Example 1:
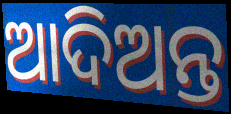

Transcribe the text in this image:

ଆଦିଅନ୍ତ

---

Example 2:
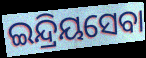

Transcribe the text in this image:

ଇନ୍ଦ୍ରିୟସେବା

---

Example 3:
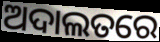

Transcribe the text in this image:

ଅଦାଲତରେ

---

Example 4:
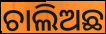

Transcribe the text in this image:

ଚାଲିଅଛ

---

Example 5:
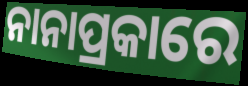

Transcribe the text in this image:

ନାନାପ୍ରକାରେ